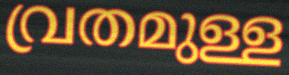
വ്രതമുള്ള